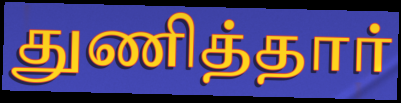
துணித்தார்